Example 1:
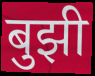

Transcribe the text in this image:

बुझी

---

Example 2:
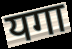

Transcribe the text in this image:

यगा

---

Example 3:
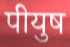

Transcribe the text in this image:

पीयुष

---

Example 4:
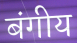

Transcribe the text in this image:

बंगीय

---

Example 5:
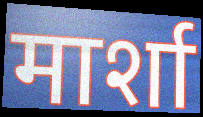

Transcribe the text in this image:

मार्शा